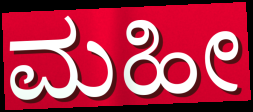
ಮಹೀ